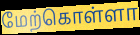
மேற்கொள்ளா